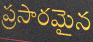
ప్రసారమైన